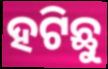
ହଟିଛୁ